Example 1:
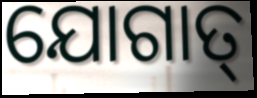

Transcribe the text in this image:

ଯୋଗାତ୍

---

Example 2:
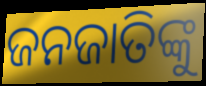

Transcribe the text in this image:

ଜନଜାତିଙ୍କୁ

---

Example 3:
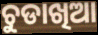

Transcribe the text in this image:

ଚୁଡାଖିଆ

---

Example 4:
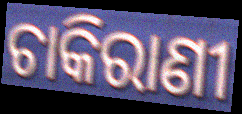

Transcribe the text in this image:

ଚାକିରାଣୀ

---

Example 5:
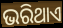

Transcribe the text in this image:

ଭରିଥାଏ